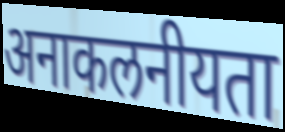
अनाकलनीयता